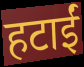
हटाईं